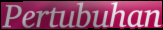
Pertubuhan